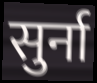
सुर्ना